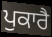
ਪੁਕਾਰੈ